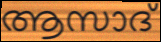
ആസാദ്